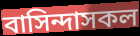
বাসিন্দাসকল